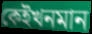
কেইখনমান